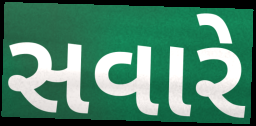
સવારે